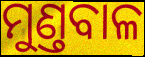
ମୁଣ୍ତବାଳ